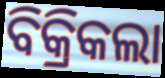
ବିକ୍ରିକଲା